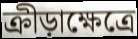
ক্রীড়াক্ষেত্রে